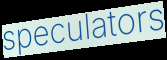
speculators